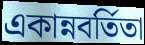
একান্নবর্তিতা